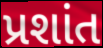
પ્રશાંત